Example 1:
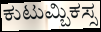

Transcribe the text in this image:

ಕುಟುಮ್ಬಿಕಸ್ಸ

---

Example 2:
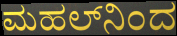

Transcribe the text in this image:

ಮಹಲ್‌ನಿಂದ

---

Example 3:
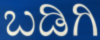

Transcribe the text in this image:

ಬಡಿಗಿ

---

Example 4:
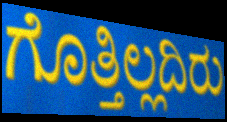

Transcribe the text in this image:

ಗೊತ್ತಿಲ್ಲದಿರು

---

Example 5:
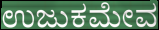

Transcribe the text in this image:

ಉಜುಕಮೇವ